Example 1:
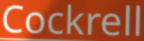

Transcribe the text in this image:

Cockrell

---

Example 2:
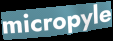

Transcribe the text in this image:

micropyle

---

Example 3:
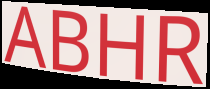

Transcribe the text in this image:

ABHR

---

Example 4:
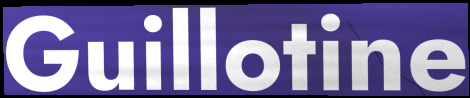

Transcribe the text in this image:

Guillotine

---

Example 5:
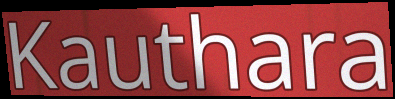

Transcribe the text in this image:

Kauthara